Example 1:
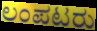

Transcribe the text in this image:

ಲಂಪಟರು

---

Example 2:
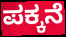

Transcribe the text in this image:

ಪಕ್ಕನೆ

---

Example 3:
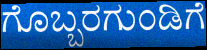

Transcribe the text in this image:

ಗೊಬ್ಬರಗುಂಡಿಗೆ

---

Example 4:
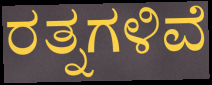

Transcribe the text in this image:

ರತ್ನಗಳಿವೆ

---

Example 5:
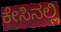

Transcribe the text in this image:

ಕೇಸಿನಲ್ಲಿ